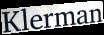
Klerman